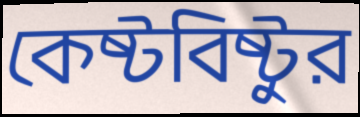
কেষ্টবিষ্টুর